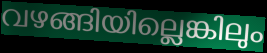
വഴങ്ങിയില്ലെങ്കിലും